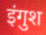
इंगुश